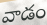
వాడం